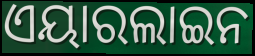
ଏୟାରଲାଇନ